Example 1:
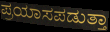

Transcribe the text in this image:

ಪ್ರಯಾಸಪಡುತ್ತಾ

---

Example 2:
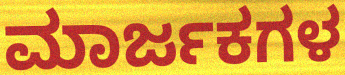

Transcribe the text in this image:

ಮಾರ್ಜಕಗಳ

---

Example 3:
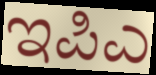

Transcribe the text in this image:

ಇಪಿಎ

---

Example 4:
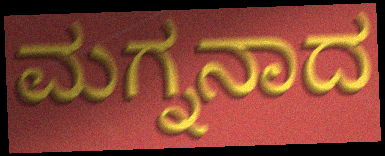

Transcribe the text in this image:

ಮಗ್ನನಾದ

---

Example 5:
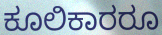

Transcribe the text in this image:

ಕೂಲಿಕಾರರೂ